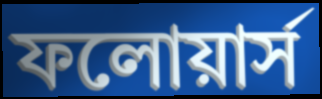
ফলোয়ার্স